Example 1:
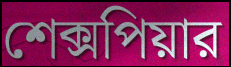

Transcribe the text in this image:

শেক্সপিয়ার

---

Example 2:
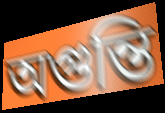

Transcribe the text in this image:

অগুন্তি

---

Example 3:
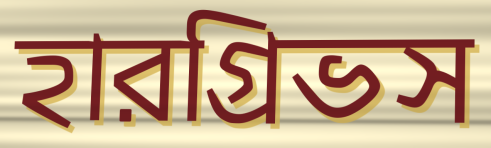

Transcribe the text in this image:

হারগ্রিভস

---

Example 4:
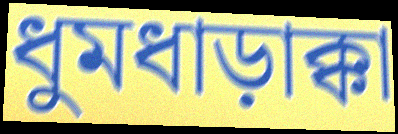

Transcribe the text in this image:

ধুমধাড়াক্কা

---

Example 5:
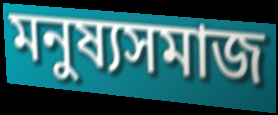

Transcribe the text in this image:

মনুষ্যসমাজ